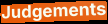
Judgements